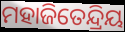
ମହାଜିତେନ୍ଦ୍ରିୟ